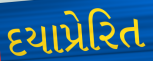
દયાપ્રેરિત